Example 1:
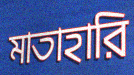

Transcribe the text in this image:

মাতাহারি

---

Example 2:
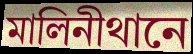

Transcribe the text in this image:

মালিনীথানে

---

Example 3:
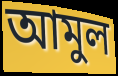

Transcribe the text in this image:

আমুল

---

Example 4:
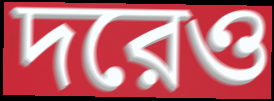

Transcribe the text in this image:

দরেও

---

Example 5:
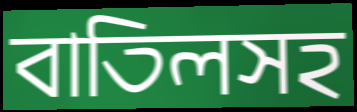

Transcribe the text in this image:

বাতিলসহ